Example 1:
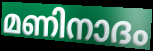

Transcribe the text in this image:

മണിനാദം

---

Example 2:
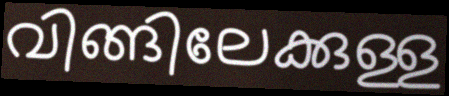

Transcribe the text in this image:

വിങ്ങിലേക്കുള്ള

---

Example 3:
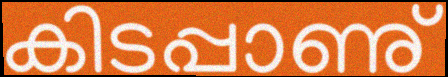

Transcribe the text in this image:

കിടപ്പാണു്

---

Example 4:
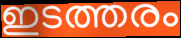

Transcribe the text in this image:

ഇടത്തരം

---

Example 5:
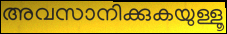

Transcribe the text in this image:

അവസാനിക്കുകയുള്ളൂ